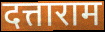
दत्ताराम